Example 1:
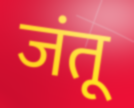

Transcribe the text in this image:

जंतू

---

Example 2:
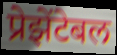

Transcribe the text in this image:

प्रेझेंटेबल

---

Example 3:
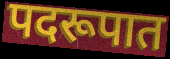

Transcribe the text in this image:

पदरूपात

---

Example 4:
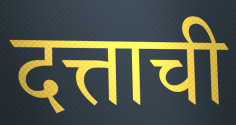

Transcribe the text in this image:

दत्ताची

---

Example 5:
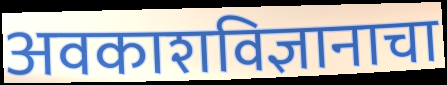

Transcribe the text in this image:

अवकाशविज्ञानाचा